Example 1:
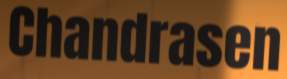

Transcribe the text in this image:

Chandrasen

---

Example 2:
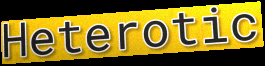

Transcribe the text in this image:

Heterotic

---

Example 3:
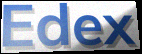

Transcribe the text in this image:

Edex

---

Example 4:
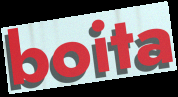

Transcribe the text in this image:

boita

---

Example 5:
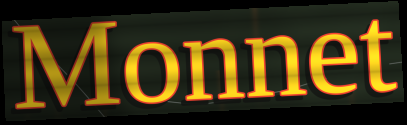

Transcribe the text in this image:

Monnet